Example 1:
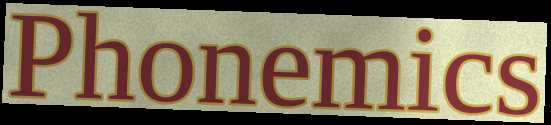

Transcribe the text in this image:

Phonemics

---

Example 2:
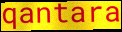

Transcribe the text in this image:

qantara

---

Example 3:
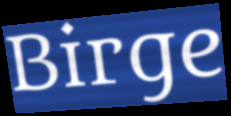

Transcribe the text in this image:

Birge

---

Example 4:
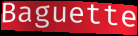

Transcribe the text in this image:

Baguette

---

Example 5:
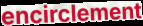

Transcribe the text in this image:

encirclement